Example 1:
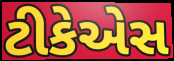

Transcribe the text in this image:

ટીકેએસ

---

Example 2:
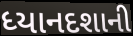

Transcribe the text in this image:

ધ્યાનદશાની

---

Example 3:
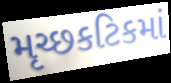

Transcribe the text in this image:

મૃચ્છકટિકમાં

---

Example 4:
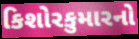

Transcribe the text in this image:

કિશોરકુમારનો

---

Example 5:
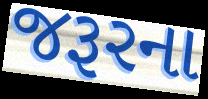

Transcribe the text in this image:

જરૂરના